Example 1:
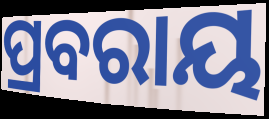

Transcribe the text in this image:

ପ୍ରବରାୟ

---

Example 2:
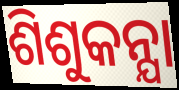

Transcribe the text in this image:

ଶିଶୁକନ୍ଯା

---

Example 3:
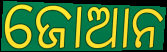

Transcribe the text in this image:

ଜୋଆନ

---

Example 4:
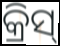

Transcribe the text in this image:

କ୍ରିସ୍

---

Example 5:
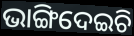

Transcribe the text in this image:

ଭାଙ୍ଗିଦେଇଚି